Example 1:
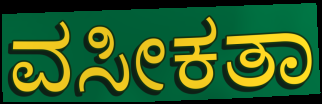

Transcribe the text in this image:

ವಸೀಕತಾ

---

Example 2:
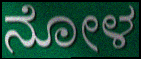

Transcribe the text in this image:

ನೋಳ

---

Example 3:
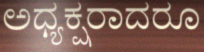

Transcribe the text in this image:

ಅಧ್ಯಕ್ಷರಾದರೂ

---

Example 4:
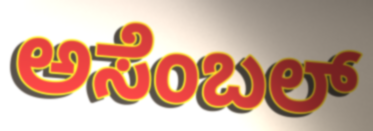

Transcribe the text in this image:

ಅಸೆಂಬಲ್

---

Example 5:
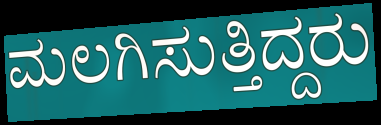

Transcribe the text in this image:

ಮಲಗಿಸುತ್ತಿದ್ದರು